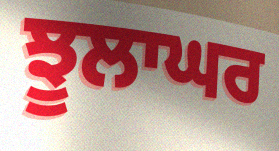
ਝੂਲਾਘਰ